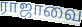
ராஜாவை